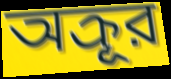
অক্রূর